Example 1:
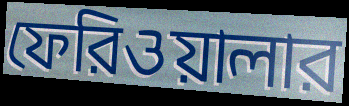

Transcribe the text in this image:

ফেরিওয়ালার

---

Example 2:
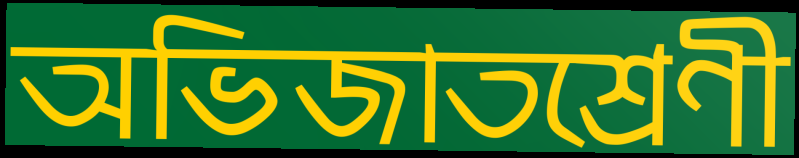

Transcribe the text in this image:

অভিজাতশ্রেণী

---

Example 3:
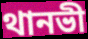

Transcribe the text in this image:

থানভী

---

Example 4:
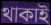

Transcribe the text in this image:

থাকাই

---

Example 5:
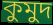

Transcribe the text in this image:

কুমুদ